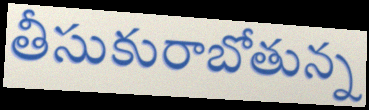
తీసుకురాబోతున్న